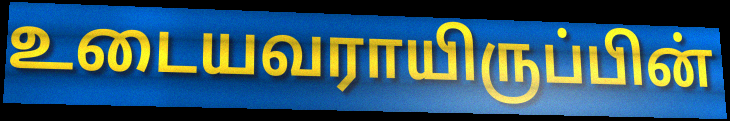
உடையவராயிருப்பின்